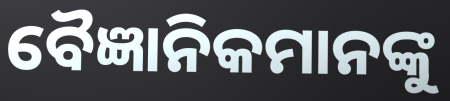
ବୈଜ୍ଞାନିକମାନଙ୍କୁ